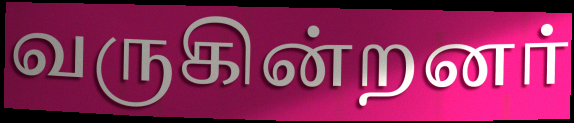
வருகின்றனர்